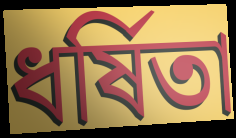
ধৰ্ষিতা